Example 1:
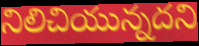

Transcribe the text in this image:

నిలిచియున్నదని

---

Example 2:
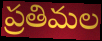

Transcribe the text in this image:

ప్రతిమల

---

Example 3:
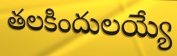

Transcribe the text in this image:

తలకిందులయ్యే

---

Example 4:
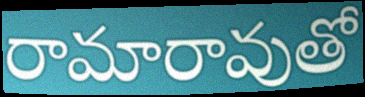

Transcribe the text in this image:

రామారావుతో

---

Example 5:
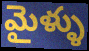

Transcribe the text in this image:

మైళ్ళు